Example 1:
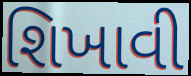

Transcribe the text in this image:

શિખાવી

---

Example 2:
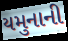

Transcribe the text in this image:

યમુનાની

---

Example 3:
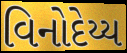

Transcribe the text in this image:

વિનોદેય્ય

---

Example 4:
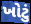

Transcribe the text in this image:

ખોટું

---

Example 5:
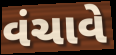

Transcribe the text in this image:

વંચાવે